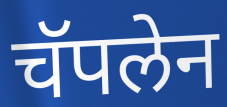
चॅपलेन